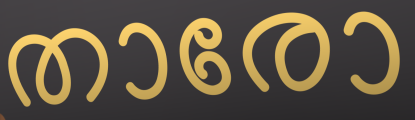
താരോ